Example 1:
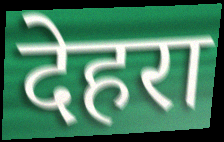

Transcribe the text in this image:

देहरा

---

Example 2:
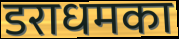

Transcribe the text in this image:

डराधमका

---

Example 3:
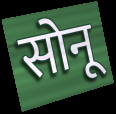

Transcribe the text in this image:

सोनू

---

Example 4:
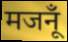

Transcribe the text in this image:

मजनूँ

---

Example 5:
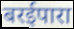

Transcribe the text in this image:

बरईपारा